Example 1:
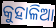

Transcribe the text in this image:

କୁହାଳିଆ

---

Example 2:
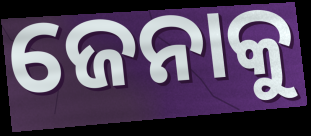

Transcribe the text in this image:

ଜେନାକୁ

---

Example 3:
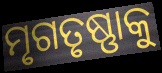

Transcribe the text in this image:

ମୃଗତୃଷ୍ଣାକୁ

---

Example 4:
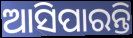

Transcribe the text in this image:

ଆସିପାରନ୍ତି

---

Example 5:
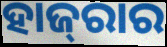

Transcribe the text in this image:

ହାଜ୍‌ରାର